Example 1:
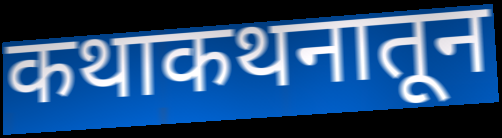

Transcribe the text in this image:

कथाकथनातून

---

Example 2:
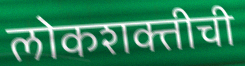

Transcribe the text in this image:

लोकशक्तीची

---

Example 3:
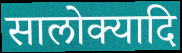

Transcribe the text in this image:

सालोक्यादि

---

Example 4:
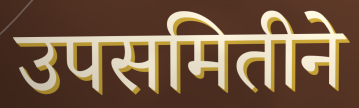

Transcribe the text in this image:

उपसमितीने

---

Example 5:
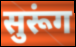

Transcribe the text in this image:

सुरूंग